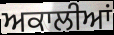
ਅਕਾਲੀਆਂ